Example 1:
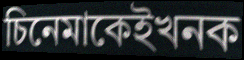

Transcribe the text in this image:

চিনেমাকেইখনক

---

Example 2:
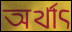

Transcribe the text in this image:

অৰ্থাৎ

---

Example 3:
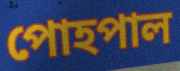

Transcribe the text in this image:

পোহপাল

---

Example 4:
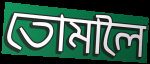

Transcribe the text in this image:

তোমালৈ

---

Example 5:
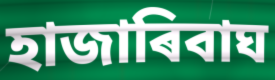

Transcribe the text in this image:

হাজাৰিবাঘ